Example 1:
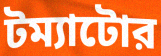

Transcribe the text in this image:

টম্যাটোর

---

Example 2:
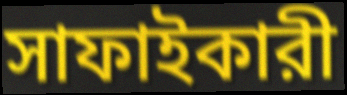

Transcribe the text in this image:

সাফাইকারী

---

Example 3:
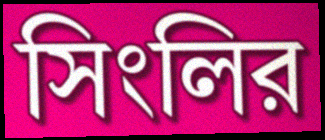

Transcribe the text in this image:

সিংলির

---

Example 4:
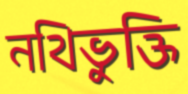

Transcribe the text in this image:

নথিভুক্তি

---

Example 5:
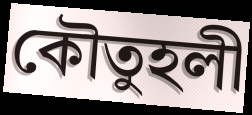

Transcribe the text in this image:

কৌতুহলী